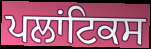
ਪਲਾਂਟਿਕਸ